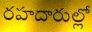
రహదారుల్లో